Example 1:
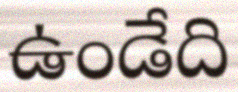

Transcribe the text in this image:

ఉండేది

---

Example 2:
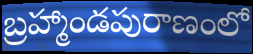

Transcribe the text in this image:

బ్రహ్మాండపురాణంలో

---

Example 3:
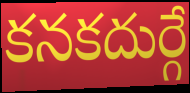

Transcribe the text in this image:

కనకదుర్గే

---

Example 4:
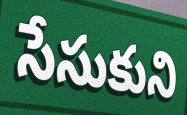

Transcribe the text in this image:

సేసుకుని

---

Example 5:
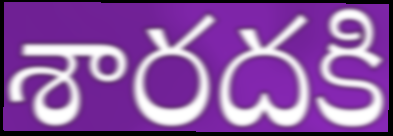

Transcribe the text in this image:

శారదకి